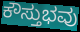
ಕೌಸ್ತುಭವು